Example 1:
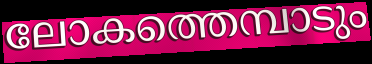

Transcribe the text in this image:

ലോകത്തെമ്പാടും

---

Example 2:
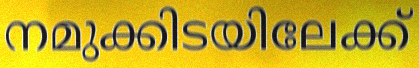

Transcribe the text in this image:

നമുക്കിടയിലേക്ക്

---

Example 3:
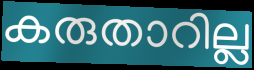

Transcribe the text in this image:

കരുതാറില്ല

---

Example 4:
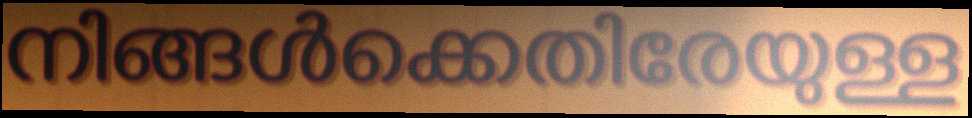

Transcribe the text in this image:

നിങ്ങൾക്കെതിരേയുള്ള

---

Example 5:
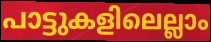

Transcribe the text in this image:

പാട്ടുകളിലെല്ലാം